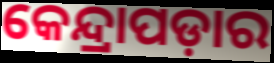
କେନ୍ଦ୍ରାପଡ଼ାର